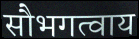
सौभगत्वाय